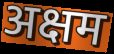
अक्षम